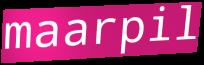
maarpil